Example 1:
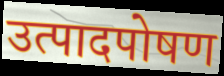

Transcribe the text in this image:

उत्पादपोषण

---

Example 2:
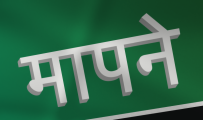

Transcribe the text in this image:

मापने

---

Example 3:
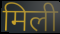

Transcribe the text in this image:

मिली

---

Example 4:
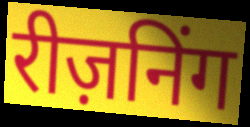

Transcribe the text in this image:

रीज़निंग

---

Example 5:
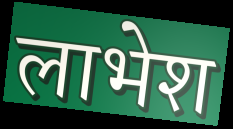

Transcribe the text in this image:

लाभेश